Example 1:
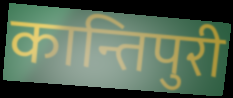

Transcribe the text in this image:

कान्तिपुरी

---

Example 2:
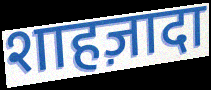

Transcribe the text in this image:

शाहज़ादा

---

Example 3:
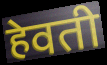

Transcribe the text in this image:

हेवती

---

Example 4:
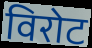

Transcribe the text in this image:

विरोट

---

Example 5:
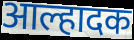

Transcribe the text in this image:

आल्हादक